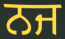
ਨਜ